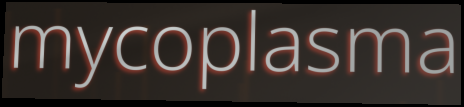
mycoplasma